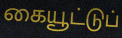
கையூட்டுப்